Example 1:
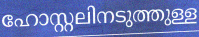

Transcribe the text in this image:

ഹോസ്റ്റലിനടുത്തുള്ള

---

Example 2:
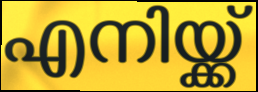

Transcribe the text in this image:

എനിയ്ക്ക്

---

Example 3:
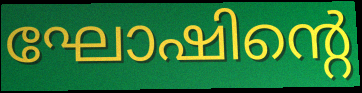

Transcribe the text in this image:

ഘോഷിന്റെ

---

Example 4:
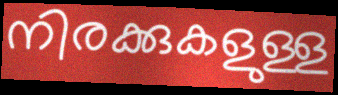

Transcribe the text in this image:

നിരക്കുകളുള്ള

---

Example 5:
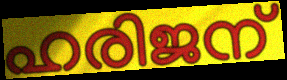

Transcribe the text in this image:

ഹരിജന്